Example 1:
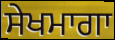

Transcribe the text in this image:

ਸੇਖਮਾਗਾ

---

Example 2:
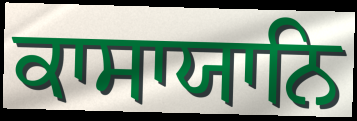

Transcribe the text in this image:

ਕਾਸਾਯਾਨਿ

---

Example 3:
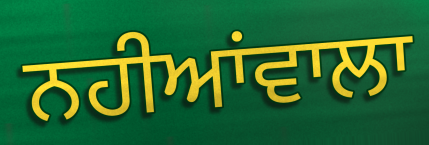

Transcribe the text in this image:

ਨਹੀਆਂਵਾਲਾ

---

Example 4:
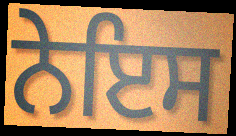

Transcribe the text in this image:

ਨੇਇਸ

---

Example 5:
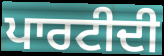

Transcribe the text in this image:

ਪਾਰਟੀਦੀ